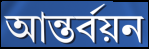
আন্তর্বয়ন